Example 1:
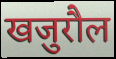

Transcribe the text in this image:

खजुरौल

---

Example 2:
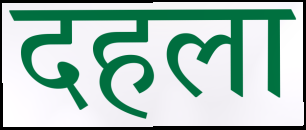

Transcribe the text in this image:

दहला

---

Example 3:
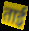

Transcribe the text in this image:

ताई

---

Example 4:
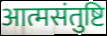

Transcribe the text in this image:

आत्मसंतुष्टि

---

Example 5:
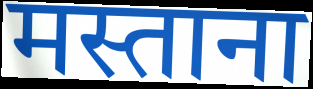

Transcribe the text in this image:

मस्ताना